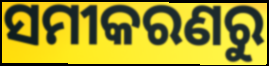
ସମୀକରଣରୁ